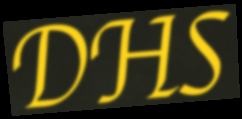
DHS